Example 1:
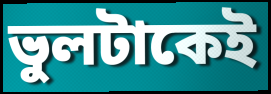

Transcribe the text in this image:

ভুলটাকেই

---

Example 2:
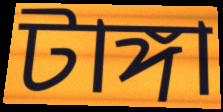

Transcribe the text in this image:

টাঙ্গা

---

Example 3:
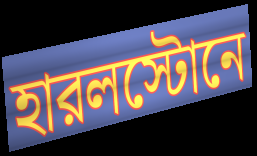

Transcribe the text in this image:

হারলস্টোনে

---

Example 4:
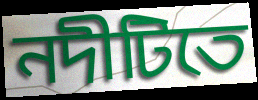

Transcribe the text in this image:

নদীটিতে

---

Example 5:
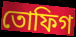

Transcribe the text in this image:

তোফিগ